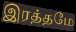
இரத்தமே